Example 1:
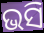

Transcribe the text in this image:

ଭସି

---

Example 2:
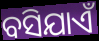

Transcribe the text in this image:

ବସିଯାଏଁ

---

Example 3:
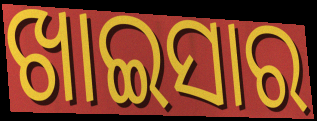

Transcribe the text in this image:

ଖାଇସାର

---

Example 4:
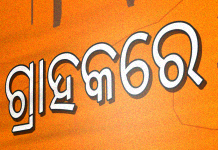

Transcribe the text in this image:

ଗ୍ରାହକରେ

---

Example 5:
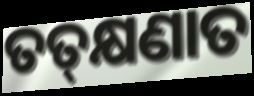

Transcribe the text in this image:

ତତ୍‍କ୍ଷଣାତ